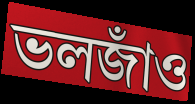
ভলজাঁও